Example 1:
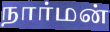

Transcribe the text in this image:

நார்மன்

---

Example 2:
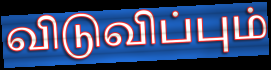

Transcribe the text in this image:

விடுவிப்பும்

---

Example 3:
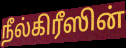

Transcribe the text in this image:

நீல்கிரீஸின்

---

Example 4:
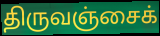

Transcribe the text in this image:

திருவஞ்சைக்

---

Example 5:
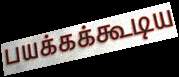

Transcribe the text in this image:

பயக்கக்கூடிய